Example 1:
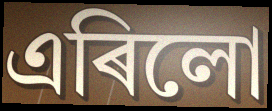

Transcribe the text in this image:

এৰিলো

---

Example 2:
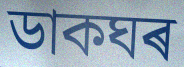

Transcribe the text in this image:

ডাকঘৰ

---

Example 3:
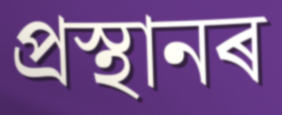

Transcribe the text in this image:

প্ৰস্থানৰ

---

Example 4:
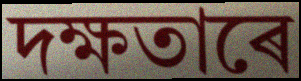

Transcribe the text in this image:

দক্ষতাৰে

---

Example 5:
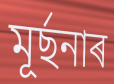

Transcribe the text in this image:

মূৰ্ছনাৰ